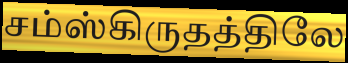
சம்ஸ்கிருதத்திலே